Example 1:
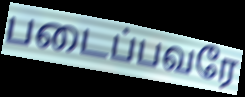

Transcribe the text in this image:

படைப்பவரே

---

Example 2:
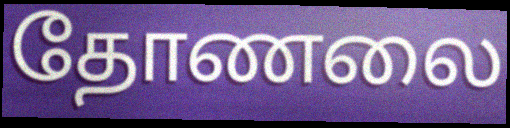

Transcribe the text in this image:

தோணலை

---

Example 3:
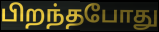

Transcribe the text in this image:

பிறந்தபோது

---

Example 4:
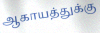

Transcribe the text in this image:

ஆகாயத்துக்கு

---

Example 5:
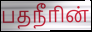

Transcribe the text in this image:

பதநீரின்